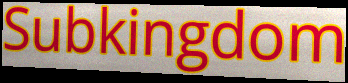
Subkingdom